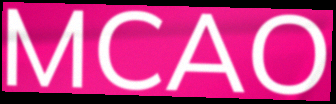
MCAO